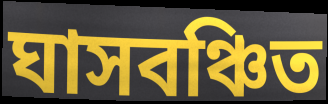
ঘাসবঞ্চিত